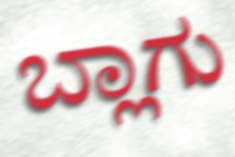
ಬ್ಲಾಗು